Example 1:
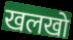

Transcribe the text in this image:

खलखो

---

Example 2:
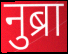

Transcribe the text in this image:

नुब्रा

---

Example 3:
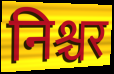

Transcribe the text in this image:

निश्चर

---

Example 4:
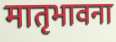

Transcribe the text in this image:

मातृभावना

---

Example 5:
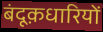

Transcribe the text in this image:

बंदूक़धारियों